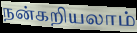
நன்கறியலாம்